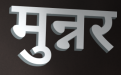
मुन्नर